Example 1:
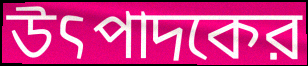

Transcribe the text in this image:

উৎপাদকের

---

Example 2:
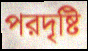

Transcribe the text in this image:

পরদৃষ্টি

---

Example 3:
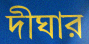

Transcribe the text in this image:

দীঘার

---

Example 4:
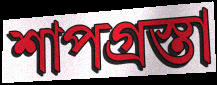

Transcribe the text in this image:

শাপগ্রস্তা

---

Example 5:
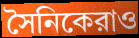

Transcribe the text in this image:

সৈনিকেরাও